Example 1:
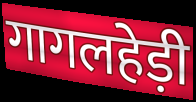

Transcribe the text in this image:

गागलहेड़ी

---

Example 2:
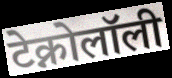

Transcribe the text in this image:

टेक्नोलॉली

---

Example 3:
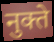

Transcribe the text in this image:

नुक्ते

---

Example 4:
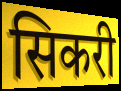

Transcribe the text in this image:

सिकरी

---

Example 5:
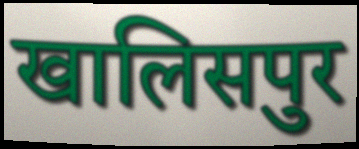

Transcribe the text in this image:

खालिसपुर